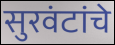
सुरवंटांचे